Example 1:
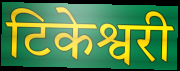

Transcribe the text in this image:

टिकेश्वरी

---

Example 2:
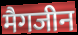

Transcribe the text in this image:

मैगजीन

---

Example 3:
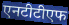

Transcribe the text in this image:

एनटीटीएफ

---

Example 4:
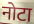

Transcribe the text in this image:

नोटा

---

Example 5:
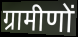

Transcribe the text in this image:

ग्रामीणों